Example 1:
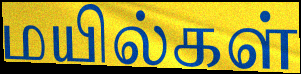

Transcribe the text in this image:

மயில்கள்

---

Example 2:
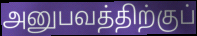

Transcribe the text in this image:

அனுபவத்திற்குப்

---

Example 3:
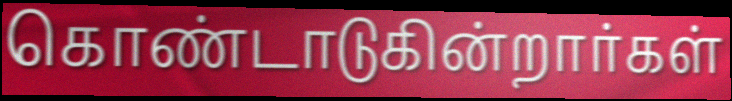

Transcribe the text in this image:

கொண்டாடுகின்றார்கள்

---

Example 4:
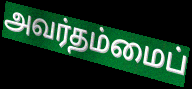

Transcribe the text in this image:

அவர்தம்மைப்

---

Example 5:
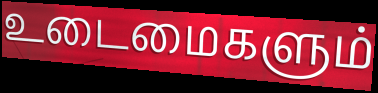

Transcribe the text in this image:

உடைமைகளும்